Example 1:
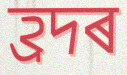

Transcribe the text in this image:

হ্ৰদৰ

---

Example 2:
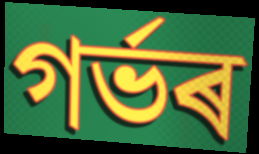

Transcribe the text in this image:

গৰ্ভৰ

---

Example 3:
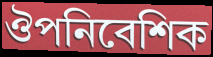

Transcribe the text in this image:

ঔপনিবেশিক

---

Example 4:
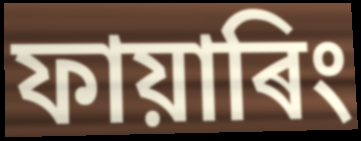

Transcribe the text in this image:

ফায়াৰিং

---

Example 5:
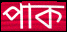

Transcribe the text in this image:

পাক